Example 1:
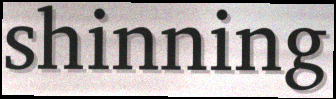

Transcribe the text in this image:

shinning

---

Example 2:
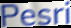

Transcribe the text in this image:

Pesri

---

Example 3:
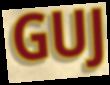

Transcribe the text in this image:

GUJ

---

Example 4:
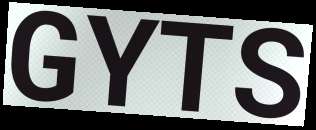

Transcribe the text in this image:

GYTS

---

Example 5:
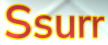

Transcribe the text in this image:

Ssurr